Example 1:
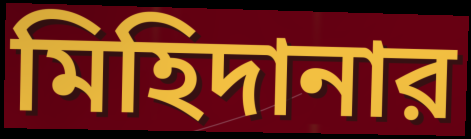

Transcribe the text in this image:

মিহিদানার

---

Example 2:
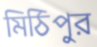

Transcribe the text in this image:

মিঠিপুর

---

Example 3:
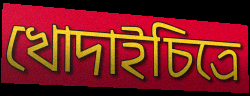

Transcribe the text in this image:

খোদাইচিত্রে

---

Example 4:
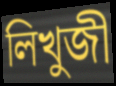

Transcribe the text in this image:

লিখুজী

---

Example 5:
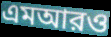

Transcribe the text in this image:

এমআরও